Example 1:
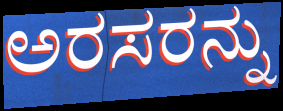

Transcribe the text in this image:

ಅರಸರನ್ನು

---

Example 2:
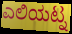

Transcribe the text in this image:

ಎಲಿಯಟ್ನ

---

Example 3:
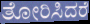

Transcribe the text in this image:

ತೋರಿಸಿದರೆ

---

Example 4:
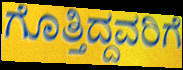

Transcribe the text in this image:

ಗೊತ್ತಿದ್ದವರಿಗೆ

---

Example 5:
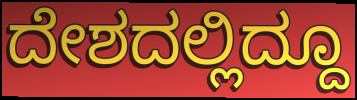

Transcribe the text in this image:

ದೇಶದಲ್ಲಿದ್ದೂ